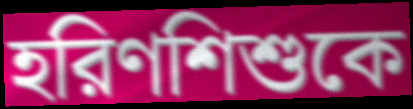
হরিণশিশুকে